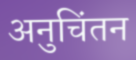
अनुचिंतन